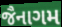
જૈનાગમ